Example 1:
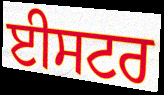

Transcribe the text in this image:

ਈਸਟਰ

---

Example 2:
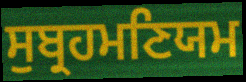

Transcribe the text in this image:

ਸੁਬ੍ਰਹਮਣਿਯਮ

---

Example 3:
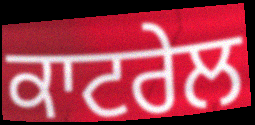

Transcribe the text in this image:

ਕਾਟਰੇਲ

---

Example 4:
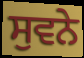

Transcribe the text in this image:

ਸੁਵਨੇ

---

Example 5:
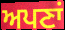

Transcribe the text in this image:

ਅਪਣਾਂ